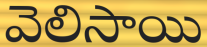
వెలిసాయి